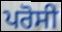
ਪਰੋਸੀ